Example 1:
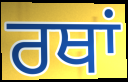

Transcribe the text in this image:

ਰਥਾਂ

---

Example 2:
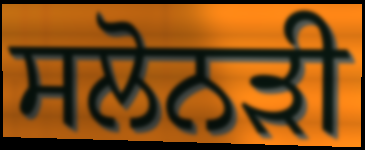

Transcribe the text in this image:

ਸਲੋਨੜੀ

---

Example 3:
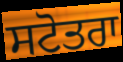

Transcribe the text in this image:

ਸਟੋਤਰਾ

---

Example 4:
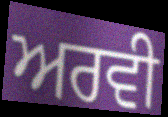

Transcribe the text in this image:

ਅਰਵੀ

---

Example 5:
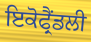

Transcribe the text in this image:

ਇਕੋਫ੍ਰੈਂਡਲੀ